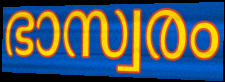
ഭാസ്വരം